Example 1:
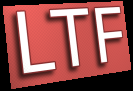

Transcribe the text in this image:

LTF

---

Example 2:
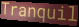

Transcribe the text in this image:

Tranquil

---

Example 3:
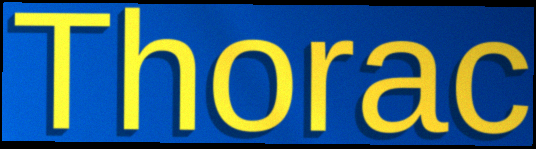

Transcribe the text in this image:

Thorac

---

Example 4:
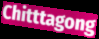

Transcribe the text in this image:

Chitttagong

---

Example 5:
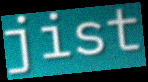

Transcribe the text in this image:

jist